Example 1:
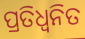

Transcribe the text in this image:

ପ୍ରତିଧ୍ଵନିତ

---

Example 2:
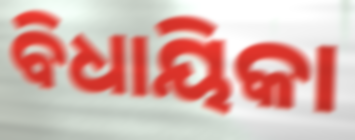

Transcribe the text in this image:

ବିଧାୟିକା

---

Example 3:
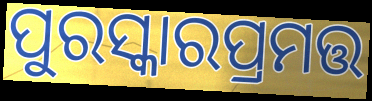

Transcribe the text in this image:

ପୁରସ୍କାରପ୍ରମତ୍ତ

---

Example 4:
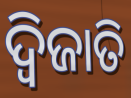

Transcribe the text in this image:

ଦ୍ୱିଜାତି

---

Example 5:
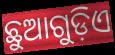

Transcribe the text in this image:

ଛୁଆଗୁଡ଼ିଏ